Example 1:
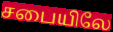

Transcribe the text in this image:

சபையிலே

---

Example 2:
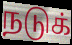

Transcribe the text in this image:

நடுக்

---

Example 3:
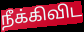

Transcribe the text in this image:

நீக்கிவிட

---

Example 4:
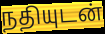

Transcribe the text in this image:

நதியுடன்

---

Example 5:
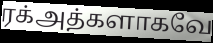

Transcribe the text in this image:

ரக்அத்களாகவே